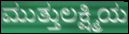
ಮುತ್ತುಲಕ್ಷ್ಮಿಯ